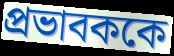
প্রভাবককে